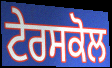
ਟੇਰਸਕੋਲ